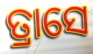
ତ୍ରାସେ